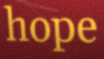
hope